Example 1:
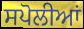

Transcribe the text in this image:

ਸਪੋਲੀਆਂ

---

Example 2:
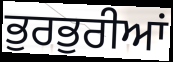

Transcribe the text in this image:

ਭੁਰਭੁਰੀਆਂ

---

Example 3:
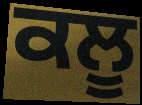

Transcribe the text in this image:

ਕਲੂ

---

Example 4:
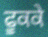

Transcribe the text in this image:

ਫੂਕਕੇ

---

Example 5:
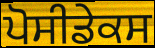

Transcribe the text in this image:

ਪੋਸੀਡੇਕਸ